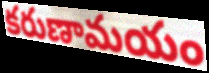
కరుణామయం